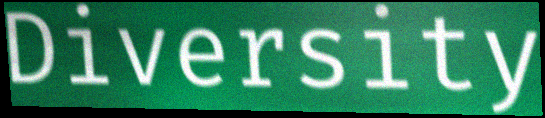
Diversity